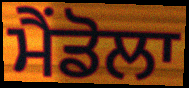
ਮੈਂਡੋਲਾ